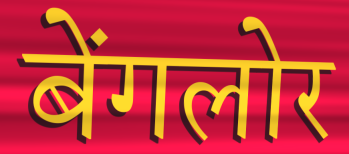
बेंगलोर